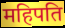
महिपति